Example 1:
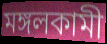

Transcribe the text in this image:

মঙ্গলকামী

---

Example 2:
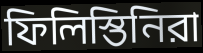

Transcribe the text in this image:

ফিলিস্তিনিরা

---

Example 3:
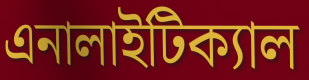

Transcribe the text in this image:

এনালাইটিক্যাল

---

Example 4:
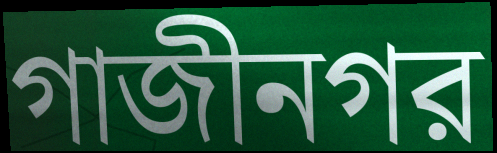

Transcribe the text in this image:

গাজীনগর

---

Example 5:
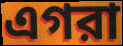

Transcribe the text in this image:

এগরা